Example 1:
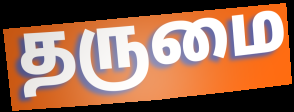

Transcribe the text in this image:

தருமை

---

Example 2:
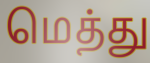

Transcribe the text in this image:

மெத்து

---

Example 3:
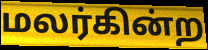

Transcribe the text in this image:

மலர்கின்ற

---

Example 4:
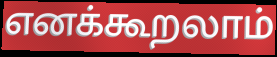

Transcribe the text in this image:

எனக்கூறலாம்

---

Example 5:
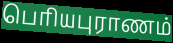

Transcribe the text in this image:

பெரியபுராணம்